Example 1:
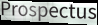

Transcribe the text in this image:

Prospectus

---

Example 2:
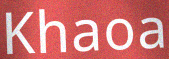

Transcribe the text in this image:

Khaoa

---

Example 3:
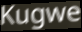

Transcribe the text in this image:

Kugwe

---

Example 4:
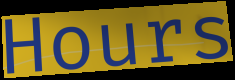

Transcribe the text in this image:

Hours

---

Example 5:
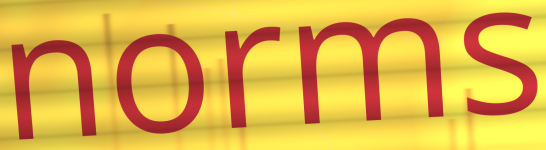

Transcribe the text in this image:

norms